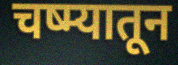
चष्म्यातून